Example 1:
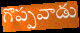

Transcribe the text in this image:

గొప్పవాడు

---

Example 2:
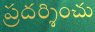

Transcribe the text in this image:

ప్రదర్శించు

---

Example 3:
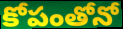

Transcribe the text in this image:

కోపంతోనో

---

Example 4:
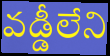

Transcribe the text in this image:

వడ్డీలేని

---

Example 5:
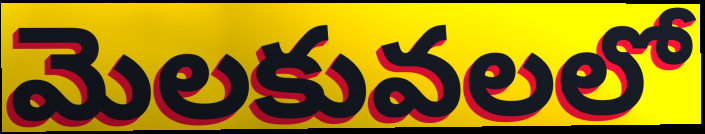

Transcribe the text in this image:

మెలకువలలో